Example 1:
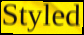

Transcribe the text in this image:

Styled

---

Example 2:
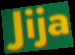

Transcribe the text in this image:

Jija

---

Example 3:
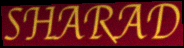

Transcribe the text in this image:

SHARAD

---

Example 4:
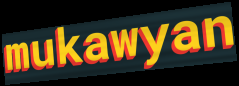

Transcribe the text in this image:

mukawyan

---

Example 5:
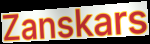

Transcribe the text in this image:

Zanskars